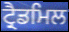
ਟ੍ਰੈਡਮਿਲ